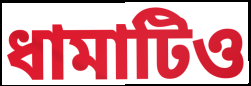
ধামাটিও